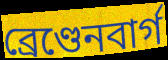
ব্ৰেণ্ডেনবাৰ্গ